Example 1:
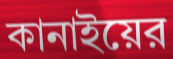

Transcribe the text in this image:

কানাইয়ের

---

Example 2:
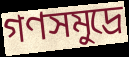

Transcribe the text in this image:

গণসমুদ্রে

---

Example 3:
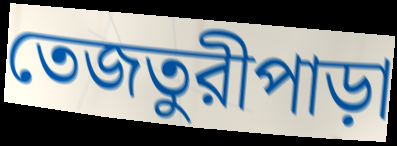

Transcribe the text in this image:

তেজতুরীপাড়া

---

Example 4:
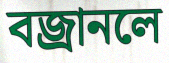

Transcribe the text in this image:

বজ্রানলে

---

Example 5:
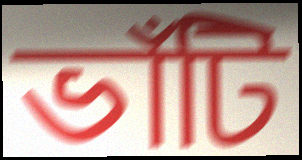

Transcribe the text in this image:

ভাঁটি